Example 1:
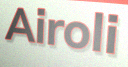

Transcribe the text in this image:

Airoli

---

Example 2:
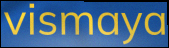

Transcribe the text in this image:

vismaya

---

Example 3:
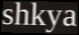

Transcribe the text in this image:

shkya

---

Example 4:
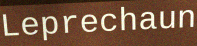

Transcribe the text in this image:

Leprechaun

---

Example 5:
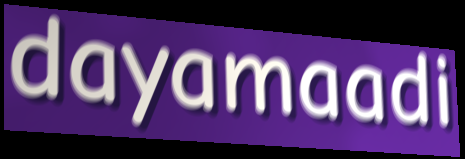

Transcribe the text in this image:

dayamaadi